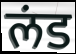
लंड